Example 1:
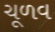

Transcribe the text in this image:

ચૂળવ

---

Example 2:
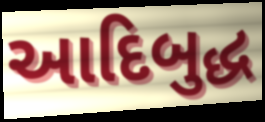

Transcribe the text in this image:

આદિબુદ્ધ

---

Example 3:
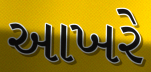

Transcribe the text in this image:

આખરે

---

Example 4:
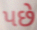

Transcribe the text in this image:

પછે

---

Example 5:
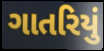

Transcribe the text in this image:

ગાતરિયું